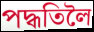
পদ্ধতিলৈ